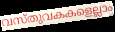
വസ്തുവകകളെല്ലാം